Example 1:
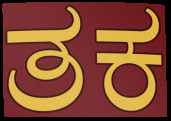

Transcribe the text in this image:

ತಕ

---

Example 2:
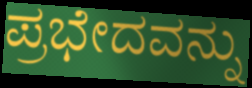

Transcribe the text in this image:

ಪ್ರಭೇದವನ್ನು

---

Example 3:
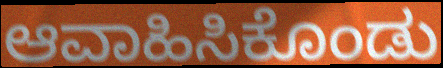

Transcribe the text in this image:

ಆವಾಹಿಸಿಕೊಂಡು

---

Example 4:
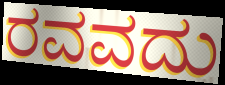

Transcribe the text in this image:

ರವವದು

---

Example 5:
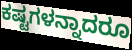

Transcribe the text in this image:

ಕಷ್ಟಗಳನ್ನಾದರೂ